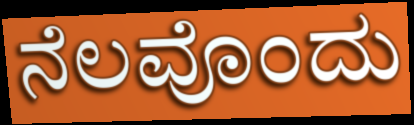
ನೆಲವೊಂದು